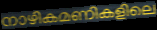
നാഴികമണികളിലെ